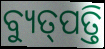
ବ୍ୟୁତ୍‌ପତ୍ତି